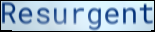
Resurgent